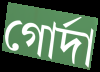
গোর্দা